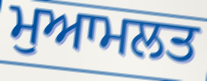
ਮੁਆਮਲਤ